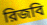
রিজবি